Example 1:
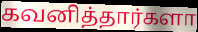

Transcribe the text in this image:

கவனித்தார்களா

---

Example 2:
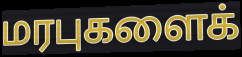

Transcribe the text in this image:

மரபுகளைக்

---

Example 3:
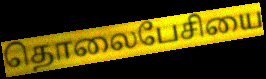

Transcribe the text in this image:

தொலைபேசியை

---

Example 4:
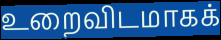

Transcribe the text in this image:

உறைவிடமாகக்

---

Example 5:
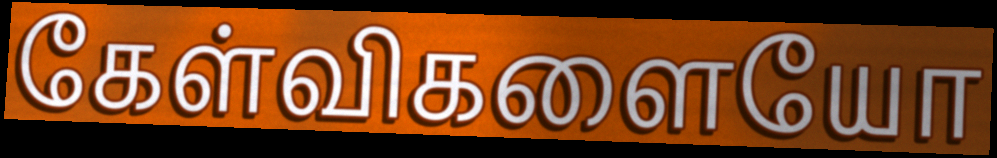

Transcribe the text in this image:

கேள்விகளையோ